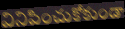
వినిపించుకోకుండా